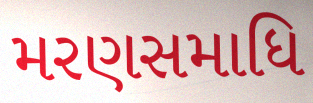
મરણસમાધિ